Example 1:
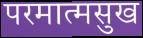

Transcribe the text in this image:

परमात्मसुख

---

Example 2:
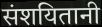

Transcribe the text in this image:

संशयितानी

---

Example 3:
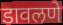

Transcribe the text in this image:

डावलणे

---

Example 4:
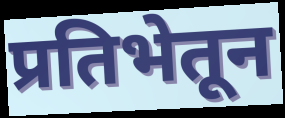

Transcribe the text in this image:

प्रतिभेतून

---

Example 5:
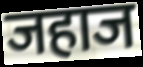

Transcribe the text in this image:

जहाज